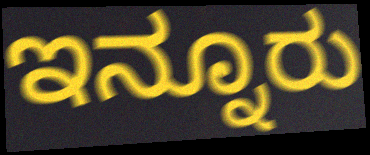
ಇನ್ನೂರು